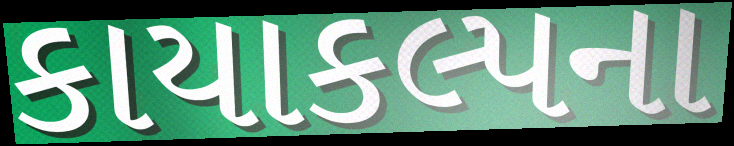
કાયાકલ્પના